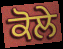
ਕੋਲੇ